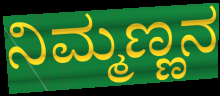
ನಿಮ್ಮಣ್ಣನ